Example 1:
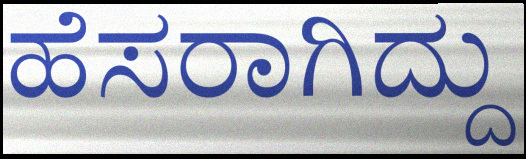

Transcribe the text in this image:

ಹೆಸರಾಗಿದ್ದು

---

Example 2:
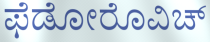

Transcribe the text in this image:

ಫೆಡೋರೊವಿಚ್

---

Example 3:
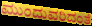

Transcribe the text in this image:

ಮುಂದುವರಿದಂತೆ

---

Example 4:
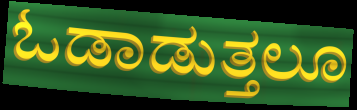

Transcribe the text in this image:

ಓಡಾಡುತ್ತಲೂ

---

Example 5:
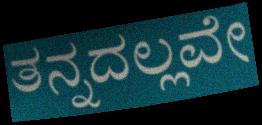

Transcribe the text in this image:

ತನ್ನದಲ್ಲವೇ